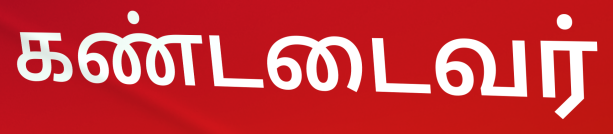
கண்டடைவர்